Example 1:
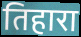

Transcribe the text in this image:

तिहारा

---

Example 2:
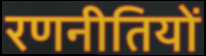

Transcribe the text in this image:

रणनीतियों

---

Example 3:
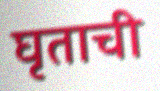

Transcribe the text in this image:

घृताची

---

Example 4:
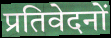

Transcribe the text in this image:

प्रतिवेदनों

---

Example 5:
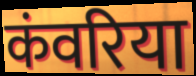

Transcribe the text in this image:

कंवरिया